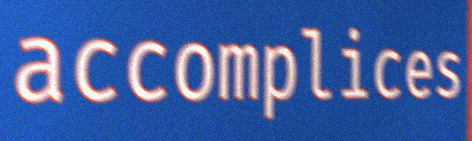
accomplices